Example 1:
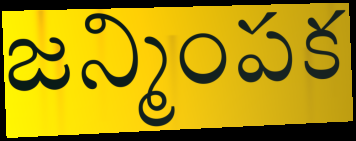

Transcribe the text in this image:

జన్మింపక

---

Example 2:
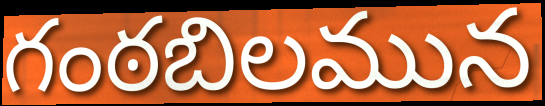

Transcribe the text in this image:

గంఠబిలమున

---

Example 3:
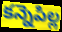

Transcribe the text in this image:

కన్నెపిల్ల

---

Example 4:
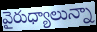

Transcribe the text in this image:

వైరుధ్యాలున్నా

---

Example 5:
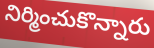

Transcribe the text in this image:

నిర్మించుకొన్నారు